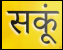
सकूं